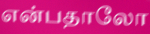
என்பதாலோ